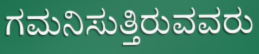
ಗಮನಿಸುತ್ತಿರುವವರು